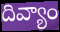
దివ్యాం